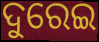
ଦୁରେଇ